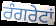
ਰੰਗਰੇਟਾਂ